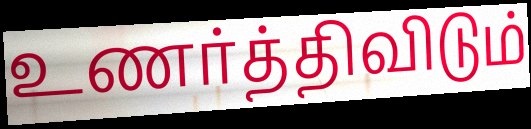
உணர்த்திவிடும்